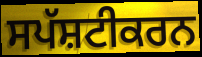
ਸਪੱਸ਼ਟੀਕਰਨ